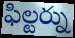
ఫిల్టర్ను